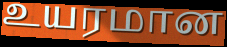
உயரமான